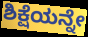
ಶಿಕ್ಷೆಯನ್ನೇ